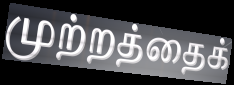
முற்றத்தைக்